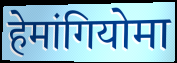
हेमांगियोमा